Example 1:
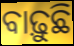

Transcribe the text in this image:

ବାଢ଼ୁଛି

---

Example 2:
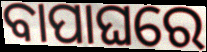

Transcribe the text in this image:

ବାପାଘରେ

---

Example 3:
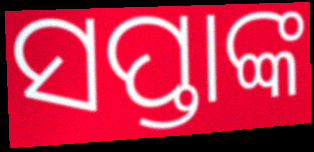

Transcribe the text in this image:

ସପ୍ତାଙ୍କ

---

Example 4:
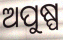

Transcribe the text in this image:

ଅପୁଷ୍ପ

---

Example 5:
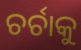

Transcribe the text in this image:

ଚର୍ଚାକୁ